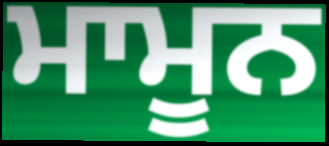
ਮਾਮੂਨ